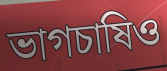
ভাগচাষিও